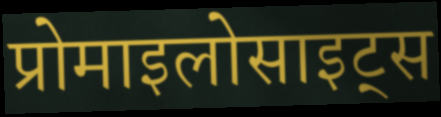
प्रोमाइलोसाइट्स